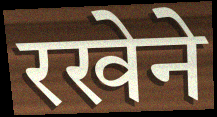
रखेने